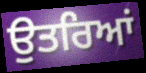
ਉਤਰਿਆਂ